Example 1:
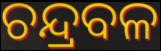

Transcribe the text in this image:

ଚନ୍ଦ୍ରବଳ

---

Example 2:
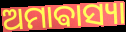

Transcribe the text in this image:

ଅମାଵାସ୍ୟା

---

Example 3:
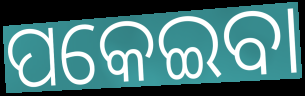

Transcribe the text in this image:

ପକେଇବା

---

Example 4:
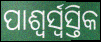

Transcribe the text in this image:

ପାଶ୍ୱର୍ସ୍ୱସ୍ତିକ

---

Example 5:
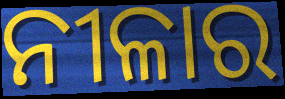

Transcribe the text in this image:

ନୀଳାର